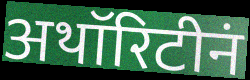
अथॉरिटीनं